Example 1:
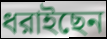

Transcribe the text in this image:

ধরাইছেন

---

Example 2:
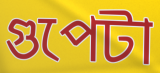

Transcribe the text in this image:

গুপেটা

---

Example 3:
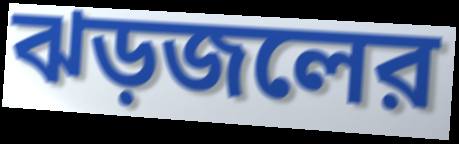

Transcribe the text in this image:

ঝড়জলের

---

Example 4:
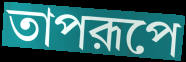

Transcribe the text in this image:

তাপরূপে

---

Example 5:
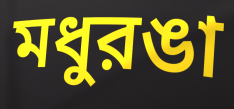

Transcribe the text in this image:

মধুরঙা